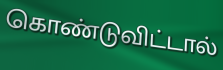
கொண்டுவிட்டால்